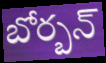
బోర్బన్